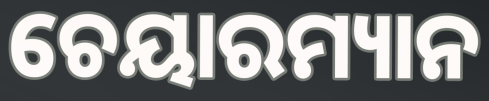
ଚେୟାରମ୍ୟାନ